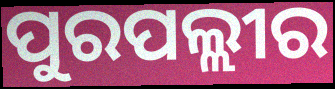
ପୁରପଲ୍ଲୀର